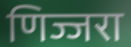
णिज्जरा